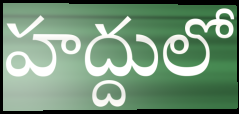
హద్దులో